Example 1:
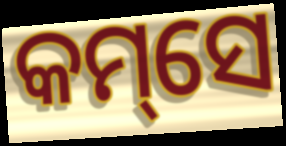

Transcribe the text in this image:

କମ୍‌ସେ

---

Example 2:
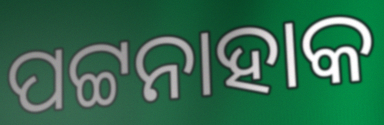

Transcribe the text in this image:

ପଟ୍ଟନାହାକ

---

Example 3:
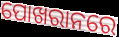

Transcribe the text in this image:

ପୋଖରାନରେ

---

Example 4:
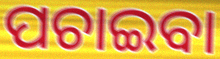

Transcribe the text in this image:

ପଚାଇବା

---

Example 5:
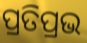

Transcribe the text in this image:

ପ୍ରତିପ୍ରଭ